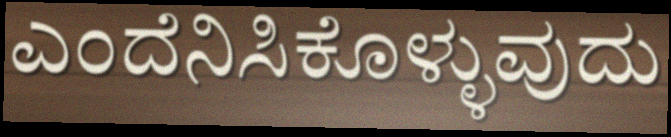
ಎಂದೆನಿಸಿಕೊಳ್ಳುವುದು